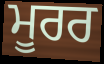
ਮੂਰਰ